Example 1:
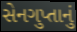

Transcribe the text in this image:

સેનગુપ્‍તાનું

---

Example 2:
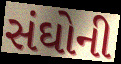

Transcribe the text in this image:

સંઘોની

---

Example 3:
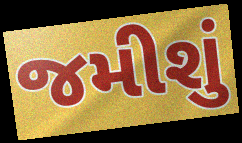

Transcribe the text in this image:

જમીશું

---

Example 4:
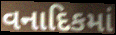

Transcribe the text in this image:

વનાદિકમાં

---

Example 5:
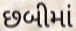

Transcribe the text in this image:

છબીમાં